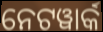
ନେଟୱାର୍କ